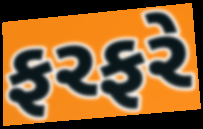
ફરફરે